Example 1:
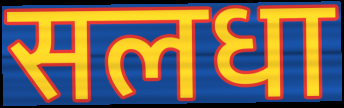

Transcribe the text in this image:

सलधा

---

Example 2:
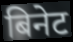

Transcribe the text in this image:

बिनेट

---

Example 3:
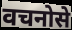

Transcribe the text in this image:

वचनोसे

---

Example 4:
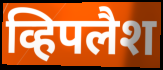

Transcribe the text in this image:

व्हिपलैश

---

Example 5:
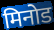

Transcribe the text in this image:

मिनोड